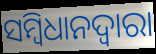
ସମ୍ବିଧାନଦ୍ବାରା